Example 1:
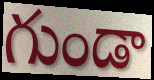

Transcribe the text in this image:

గుండా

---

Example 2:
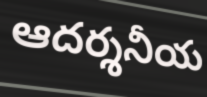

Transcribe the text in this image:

ఆదర్శనీయ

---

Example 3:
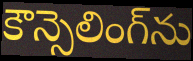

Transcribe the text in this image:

కౌన్సెలింగ్‌ను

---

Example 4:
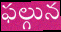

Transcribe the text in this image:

ఫల్గున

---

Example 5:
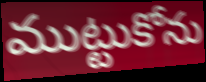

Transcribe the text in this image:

ముట్టుకోను